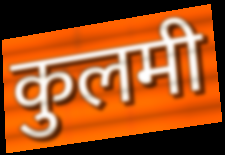
कुलमी